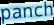
panch